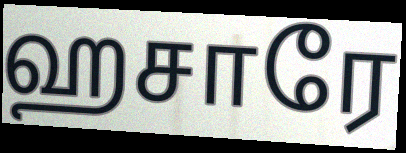
ஹசாரே